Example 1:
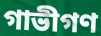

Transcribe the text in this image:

গাভীগণ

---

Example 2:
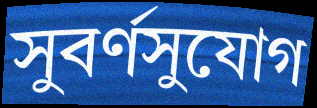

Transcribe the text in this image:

সুবর্ণসুযোগ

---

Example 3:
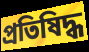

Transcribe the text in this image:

প্রতিষিদ্ধ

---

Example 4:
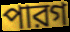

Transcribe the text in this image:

পারগ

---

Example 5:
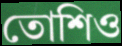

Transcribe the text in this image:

তোশিও